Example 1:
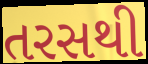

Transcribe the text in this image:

તરસથી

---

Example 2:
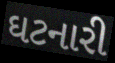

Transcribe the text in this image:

ઘટનારી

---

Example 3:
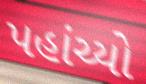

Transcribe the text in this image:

પહાંચ્યો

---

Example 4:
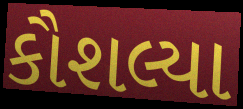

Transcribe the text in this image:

કૌશલ્યા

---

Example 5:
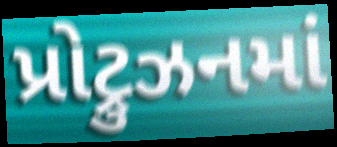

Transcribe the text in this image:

પ્રોટ્રુઝનમાં